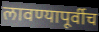
लावण्यापूर्वीच